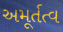
અમૂર્તત્વ